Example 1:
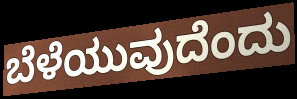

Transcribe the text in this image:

ಬೆಳೆಯುವುದೆಂದು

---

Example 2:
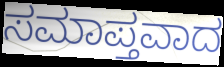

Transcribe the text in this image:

ಸಮಾಪ್ತವಾದ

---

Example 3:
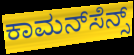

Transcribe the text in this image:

ಕಾಮನ್‌ಸೆನ್ಸ್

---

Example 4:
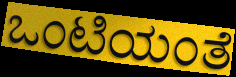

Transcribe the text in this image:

ಒಂಟಿಯಂತೆ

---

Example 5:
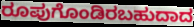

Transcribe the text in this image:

ರೂಪುಗೊಂಡಿರಬಹುದಾದ